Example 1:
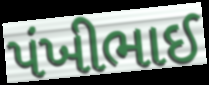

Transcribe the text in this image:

પંખીભાઈ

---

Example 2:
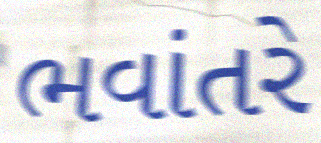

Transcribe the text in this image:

ભવાંતરે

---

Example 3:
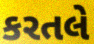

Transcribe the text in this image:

કરતલે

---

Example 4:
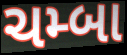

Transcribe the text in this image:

ચમ્બા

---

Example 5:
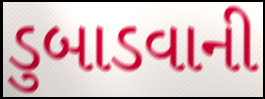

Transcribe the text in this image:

ડુબાડવાની